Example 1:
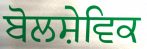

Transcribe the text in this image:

ਬੋਲਸ਼ੇਵਿਕ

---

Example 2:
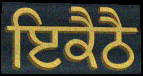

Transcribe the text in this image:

ਇਕੈਠੈ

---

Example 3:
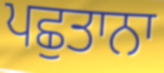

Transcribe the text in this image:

ਪਛੁਤਾਨਾ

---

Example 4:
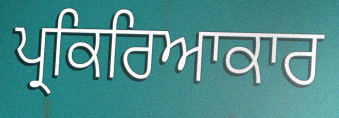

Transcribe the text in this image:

ਪ੍ਰਕਿਰਿਆਕਾਰ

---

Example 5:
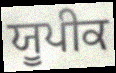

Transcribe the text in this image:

ਯੂਪੀਕ